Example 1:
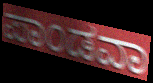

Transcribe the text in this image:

ಪಾಂಡವಾ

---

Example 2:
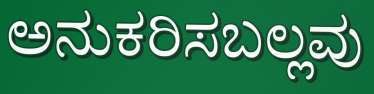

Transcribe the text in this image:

ಅನುಕರಿಸಬಲ್ಲವು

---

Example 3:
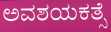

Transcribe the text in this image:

ಅವಶಯಕತ್ಸೆ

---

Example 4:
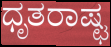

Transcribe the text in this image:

ಧೃತರಾಷ್ಟ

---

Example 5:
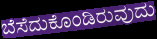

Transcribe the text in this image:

ಬೆಸೆದುಕೊಂಡಿರುವುದು